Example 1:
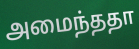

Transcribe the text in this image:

அமைந்ததா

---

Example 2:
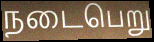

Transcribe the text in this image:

நடைபெறு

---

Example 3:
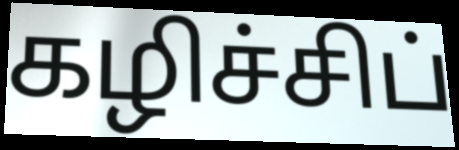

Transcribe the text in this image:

கழிச்சிப்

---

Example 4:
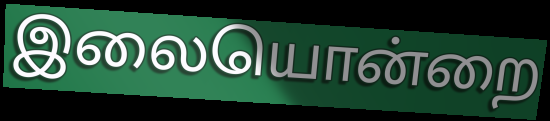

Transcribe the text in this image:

இலையொன்றை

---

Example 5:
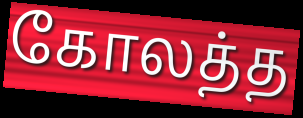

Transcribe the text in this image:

கோலத்த